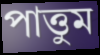
পাত্তুম